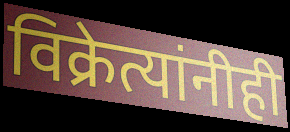
विक्रेत्यांनीही